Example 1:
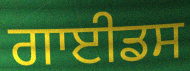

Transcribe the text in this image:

ਗਾਈਡਸ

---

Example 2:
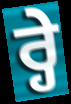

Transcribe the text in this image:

ਰ੍ਹੇ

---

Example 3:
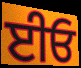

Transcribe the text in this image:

ਈਓ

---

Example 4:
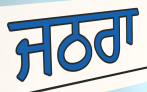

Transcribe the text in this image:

ਜਠਰਾ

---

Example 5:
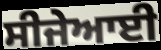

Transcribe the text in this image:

ਸੀਜੇਆਈ